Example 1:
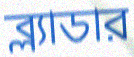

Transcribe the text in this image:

ব্ল্যাডার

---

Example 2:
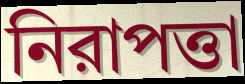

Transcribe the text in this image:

নিরাপত্তা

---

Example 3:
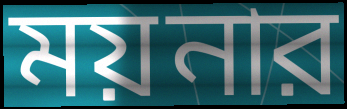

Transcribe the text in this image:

ময়নার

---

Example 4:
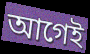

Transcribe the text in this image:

আগেই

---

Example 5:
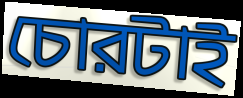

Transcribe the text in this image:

চোরটাই